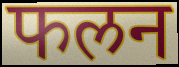
फलन